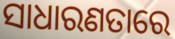
ସାଧାରଣତାରେ